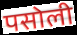
पसोली